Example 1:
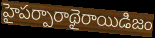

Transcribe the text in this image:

హైపర్పారాథైరాయిడిజం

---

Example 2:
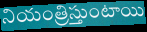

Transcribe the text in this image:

నియంత్రిస్తుంటాయి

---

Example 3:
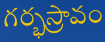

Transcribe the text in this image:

గర్భస్రావం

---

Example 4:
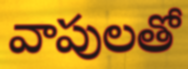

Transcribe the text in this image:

వాపులతో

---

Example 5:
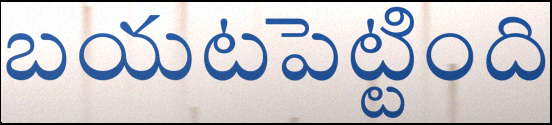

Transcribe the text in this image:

బయటపెట్టింది